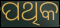
ପଥିକ